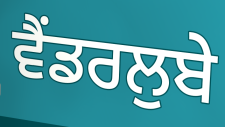
ਵੈਂਡਰਲੁਬੇ